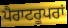
ਪੈਰਾਟਰੂਪਰਾਂ